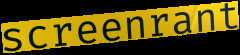
screenrant